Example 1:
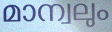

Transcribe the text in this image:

മാന്വലും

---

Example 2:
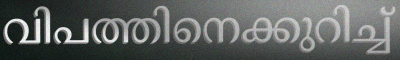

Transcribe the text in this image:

വിപത്തിനെക്കുറിച്ച്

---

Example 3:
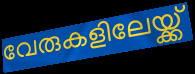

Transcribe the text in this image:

വേരുകളിലേയ്ക്ക്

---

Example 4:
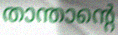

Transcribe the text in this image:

താന്താന്റെ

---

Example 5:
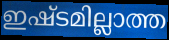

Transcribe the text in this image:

ഇഷ്ടമില്ലാത്ത